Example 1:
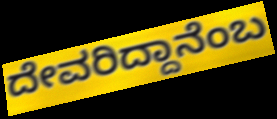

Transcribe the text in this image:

ದೇವರಿದ್ದಾನೆಂಬ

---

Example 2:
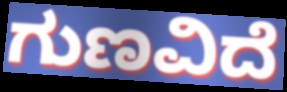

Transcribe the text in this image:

ಗುಣವಿದೆ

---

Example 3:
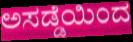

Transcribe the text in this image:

ಅಸಡ್ಡೆಯಿಂದ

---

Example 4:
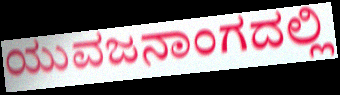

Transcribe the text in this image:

ಯುವಜನಾಂಗದಲ್ಲಿ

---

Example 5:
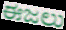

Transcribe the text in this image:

ಈಜಲು